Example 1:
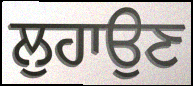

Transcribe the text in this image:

ਲੁਹਾਉਣ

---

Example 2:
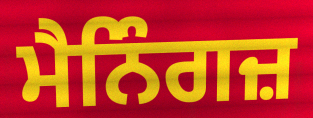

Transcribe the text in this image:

ਮੈਨਿੰਗਜ਼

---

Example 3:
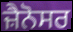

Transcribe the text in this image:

ਜ਼ੈਨੋਸਰ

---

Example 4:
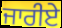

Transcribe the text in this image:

ਜਾਰੀਏ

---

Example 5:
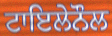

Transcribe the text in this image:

ਟਾਇਲੇਨੌਲ